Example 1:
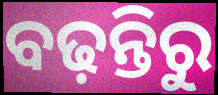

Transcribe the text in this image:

ବଢ଼ନ୍ତିରୁ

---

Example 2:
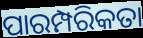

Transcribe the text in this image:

ପାରମ୍ପରିକତା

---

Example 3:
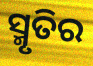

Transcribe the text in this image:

ସ୍ମୃତିର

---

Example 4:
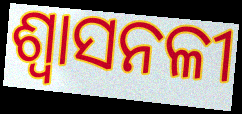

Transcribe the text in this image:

ଶ୍ଵାସନଳୀ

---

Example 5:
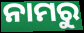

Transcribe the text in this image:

ନାମରୁ